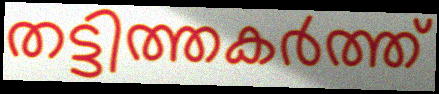
തട്ടിത്തകർത്ത്